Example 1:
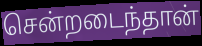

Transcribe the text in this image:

சென்றடைந்தான்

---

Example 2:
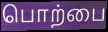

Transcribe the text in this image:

பொற்பை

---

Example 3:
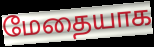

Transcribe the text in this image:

மேதையாக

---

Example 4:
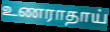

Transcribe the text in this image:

உணராதாய்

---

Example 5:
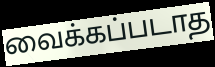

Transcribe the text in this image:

வைக்கப்படாத